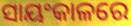
ସାୟଂକାଳରେ